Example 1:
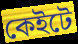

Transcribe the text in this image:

কেইটে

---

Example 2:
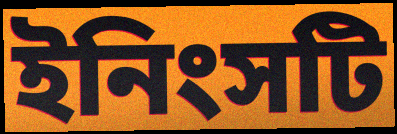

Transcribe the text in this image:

ইনিংসটি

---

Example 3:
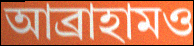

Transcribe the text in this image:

আব্রাহামও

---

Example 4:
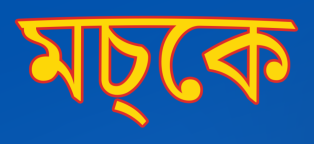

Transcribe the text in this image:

মচ্কে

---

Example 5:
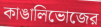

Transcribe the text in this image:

কাঙালিভোজের